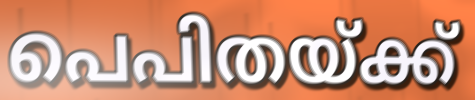
പെപിതയ്ക്ക്